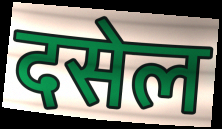
दसेल